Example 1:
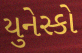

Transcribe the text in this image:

યુનેસ્કો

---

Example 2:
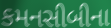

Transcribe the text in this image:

કમનસીબીના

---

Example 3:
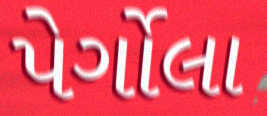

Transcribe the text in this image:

પેર્ગોલા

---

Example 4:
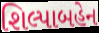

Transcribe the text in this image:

શિલ્પાબહેન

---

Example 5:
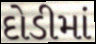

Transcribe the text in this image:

દોડીમાં